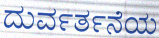
ದುರ್ವರ್ತನೆಯ